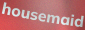
housemaid